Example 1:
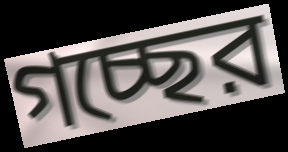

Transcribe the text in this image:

গচ্ছের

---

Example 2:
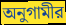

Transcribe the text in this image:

অনুগামীর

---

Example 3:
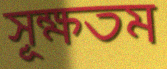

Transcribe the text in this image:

সূক্ষতম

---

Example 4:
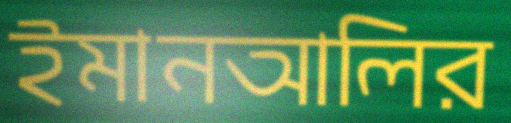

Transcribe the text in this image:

ইমানআলির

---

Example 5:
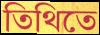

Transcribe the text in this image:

তিথিতে